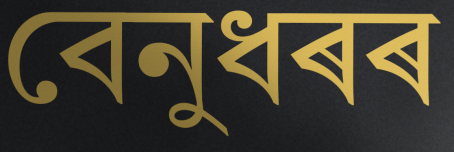
বেনুধৰৰ